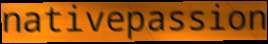
nativepassion